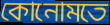
কোনোমতে